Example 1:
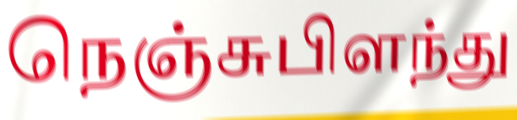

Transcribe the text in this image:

நெஞ்சுபிளந்து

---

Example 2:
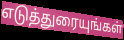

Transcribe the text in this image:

எடுத்துரையுங்கள்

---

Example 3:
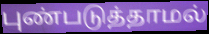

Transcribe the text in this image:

புண்படுத்தாமல்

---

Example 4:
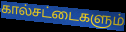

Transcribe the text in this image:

கால்சட்டைகளும்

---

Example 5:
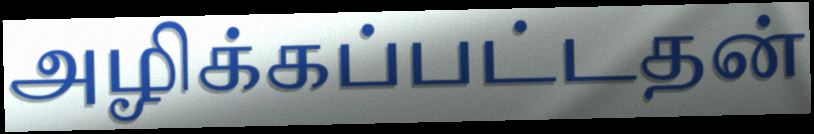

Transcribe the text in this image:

அழிக்கப்பட்டதன்